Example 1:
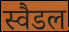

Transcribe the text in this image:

स्वैडल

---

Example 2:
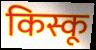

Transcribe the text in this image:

किस्कू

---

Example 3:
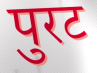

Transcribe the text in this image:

पुरट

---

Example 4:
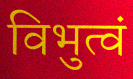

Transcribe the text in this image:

विभुत्वं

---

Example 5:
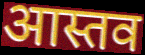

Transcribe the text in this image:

आस्तव